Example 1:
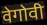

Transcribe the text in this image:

वेगोवी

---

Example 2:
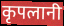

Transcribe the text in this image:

कृपलानी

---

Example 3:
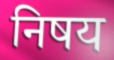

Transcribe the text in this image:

निषय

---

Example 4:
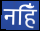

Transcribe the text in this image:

नहिँ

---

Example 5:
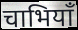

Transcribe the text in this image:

चाभियाँ